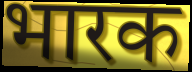
भारक